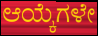
ಆಯ್ಕೆಗಳೇ